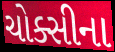
ચોક્સીના